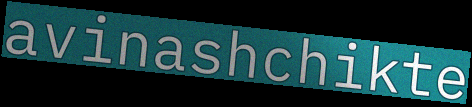
avinashchikte